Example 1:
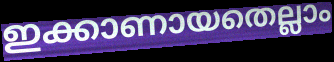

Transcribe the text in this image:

ഇക്കാണായതെല്ലാം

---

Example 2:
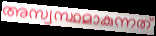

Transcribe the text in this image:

അസ്വസ്ഥമാകുന്നത്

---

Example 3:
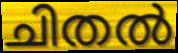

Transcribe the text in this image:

ചിതൽ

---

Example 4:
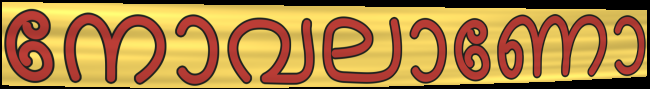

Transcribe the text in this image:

നോവലാണോ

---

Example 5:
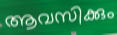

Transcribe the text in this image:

ആവസിക്കും